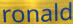
ronald